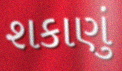
શકાણું